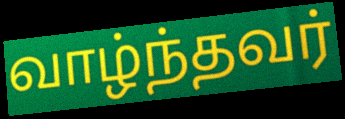
வாழ்ந்தவர்